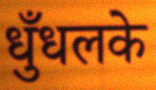
धुँधलके